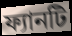
ফ্যানটি